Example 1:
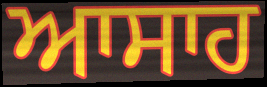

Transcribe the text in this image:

ਆਸਾਹ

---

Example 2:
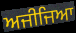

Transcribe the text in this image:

ਅਜੀਜਿਆ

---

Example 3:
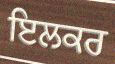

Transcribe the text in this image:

ਇਲਕਰ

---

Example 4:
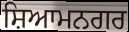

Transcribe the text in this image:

ਸ਼ਿਆਮਨਗਰ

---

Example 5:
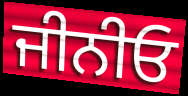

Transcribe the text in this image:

ਜੀਨੀਓ